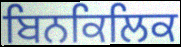
ਬਿਨਕਿਲਿਕ